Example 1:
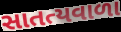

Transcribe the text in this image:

સાતત્યવાળા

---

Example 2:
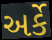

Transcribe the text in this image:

અર્કે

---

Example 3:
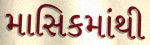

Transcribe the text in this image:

માસિકમાંથી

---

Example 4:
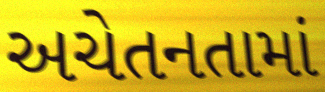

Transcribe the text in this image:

અચેતનતામાં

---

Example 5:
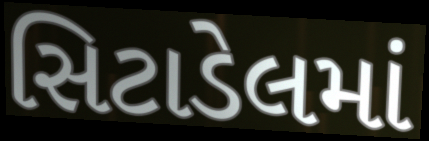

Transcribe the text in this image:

સિટાડેલમાં